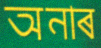
অনাৰ